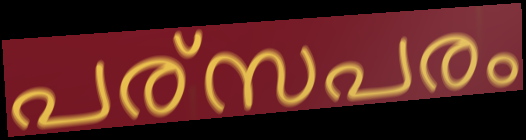
പര്സപരം